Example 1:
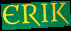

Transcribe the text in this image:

ERIK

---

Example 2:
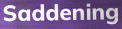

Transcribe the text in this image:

Saddening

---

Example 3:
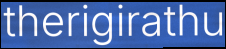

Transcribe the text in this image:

therigirathu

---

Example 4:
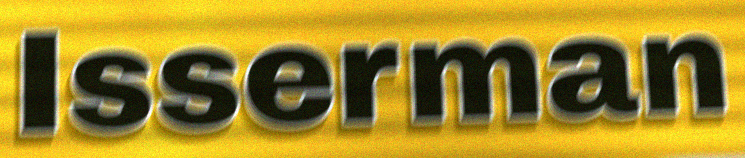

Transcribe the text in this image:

Isserman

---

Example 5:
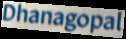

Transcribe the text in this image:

Dhanagopal